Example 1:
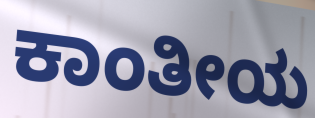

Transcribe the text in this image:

ಕಾಂತೀಯ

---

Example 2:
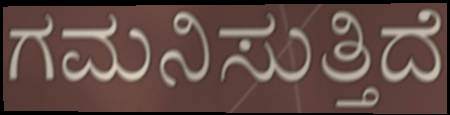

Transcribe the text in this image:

ಗಮನಿಸುತ್ತಿದೆ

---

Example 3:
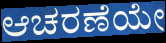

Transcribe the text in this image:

ಆಚರಣೆಯೇ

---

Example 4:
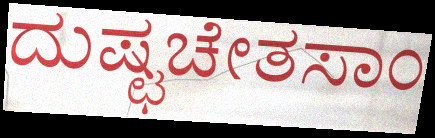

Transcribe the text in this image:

ದುಷ್ಟಚೇತಸಾಂ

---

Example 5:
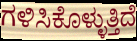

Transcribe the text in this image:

ಗಳಿಸಿಕೊಳ್ಳುತ್ತಿದೆ